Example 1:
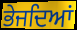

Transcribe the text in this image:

ਭੇਜਦਿਆਂ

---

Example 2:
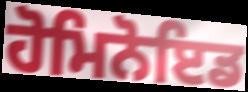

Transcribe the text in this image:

ਹੋਮਿਨੋਇਡ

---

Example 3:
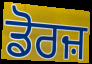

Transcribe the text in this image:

ਡੋਰਜ਼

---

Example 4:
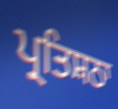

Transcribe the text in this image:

ਪ੍ਰਤਿਸ਼ਠਾ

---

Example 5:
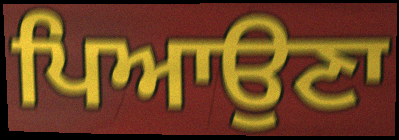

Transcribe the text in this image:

ਪਿਆਉਣਾ